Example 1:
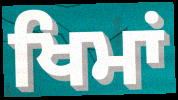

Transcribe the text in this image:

ਖਿਮਾਂ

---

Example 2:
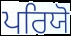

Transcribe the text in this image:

ਪਰਿਯੋ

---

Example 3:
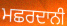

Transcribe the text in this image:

ਮਛਰਦਾਨੀ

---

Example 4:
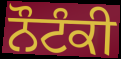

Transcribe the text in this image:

ਨੌਟੰਕੀ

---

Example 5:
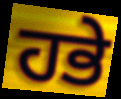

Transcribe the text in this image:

ਹਭੇ